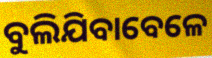
ବୁଲିଯିବାବେଳେ